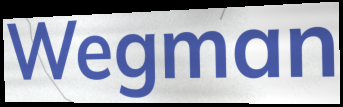
Wegman